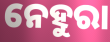
ନେହୁରା